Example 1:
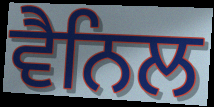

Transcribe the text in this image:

ਵੈਨਿਲ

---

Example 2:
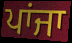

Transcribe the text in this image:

ਪਾਂਜਾ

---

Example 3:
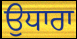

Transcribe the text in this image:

ਉਧਾਰਾ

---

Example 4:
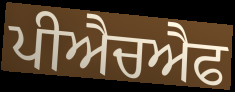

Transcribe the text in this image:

ਪੀਐਚਐਫ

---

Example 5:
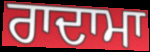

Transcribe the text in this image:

ਰਾਦਾਮਾ